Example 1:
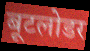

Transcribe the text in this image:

बूटलोडर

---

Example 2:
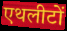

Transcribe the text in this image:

एथलीटों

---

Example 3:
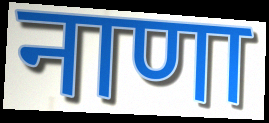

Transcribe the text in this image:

नाणा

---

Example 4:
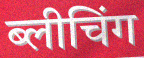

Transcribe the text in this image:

ब्लीचिंग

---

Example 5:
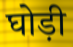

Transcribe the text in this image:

घोड़ी